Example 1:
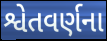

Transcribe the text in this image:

શ્વેતવર્ણના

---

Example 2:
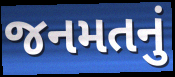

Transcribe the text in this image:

જનમતનું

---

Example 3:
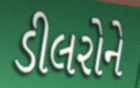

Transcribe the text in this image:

ડીલરોને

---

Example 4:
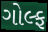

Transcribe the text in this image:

ગોલ્ફ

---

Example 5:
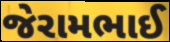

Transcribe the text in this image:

જેરામભાઈ